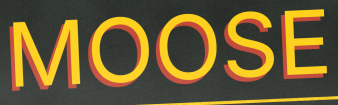
MOOSE